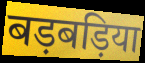
बड़बड़िया